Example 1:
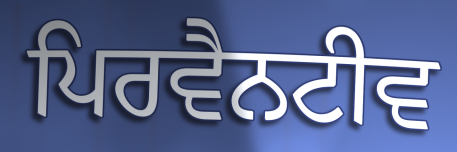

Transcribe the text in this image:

ਪਿਰਵੈਨਟੀਵ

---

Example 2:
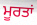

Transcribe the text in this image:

ਮੂਰਤਾਂ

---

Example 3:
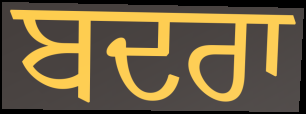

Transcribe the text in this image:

ਬਦਰਾ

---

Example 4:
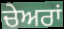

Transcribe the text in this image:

ਚੇਅਰਾਂ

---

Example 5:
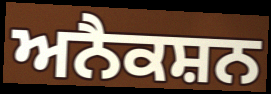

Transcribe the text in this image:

ਅਨੈਕਸ਼ਨ